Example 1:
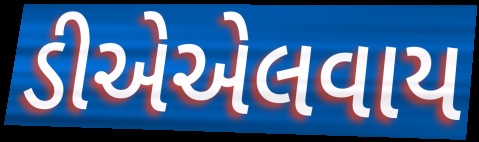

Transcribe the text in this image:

ડીએએલવાય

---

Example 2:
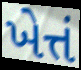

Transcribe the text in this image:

ખેત્તં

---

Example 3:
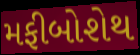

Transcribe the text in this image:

મફીબોશેથ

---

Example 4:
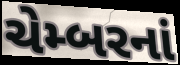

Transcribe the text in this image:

ચેમ્બરનાં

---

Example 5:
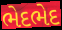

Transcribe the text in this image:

ભેદભેદ